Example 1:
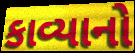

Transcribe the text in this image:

કાવ્યાનો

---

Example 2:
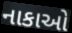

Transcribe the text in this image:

નાકાઓ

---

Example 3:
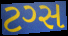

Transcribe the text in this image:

ટગ્સ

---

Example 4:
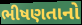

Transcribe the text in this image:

ભીષણતાનો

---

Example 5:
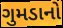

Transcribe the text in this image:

ગુમડાનો